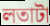
লতাটা